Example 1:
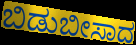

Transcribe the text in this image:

ಬಿಡುಬೀಸಾದ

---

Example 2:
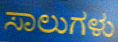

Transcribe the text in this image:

ಸಾಲುಗಳು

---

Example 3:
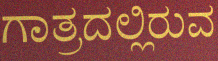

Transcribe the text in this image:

ಗಾತ್ರದಲ್ಲಿರುವ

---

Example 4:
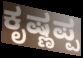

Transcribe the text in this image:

ಕೃಷ್ಣಪ್ಪ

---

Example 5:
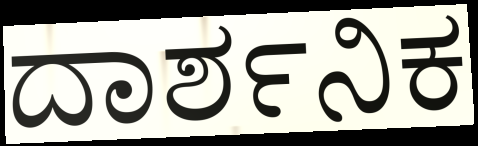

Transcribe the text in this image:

ದಾರ್ಶನಿಕ